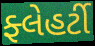
ફ્લેહર્ટી